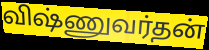
விஷ்ணுவர்தன்